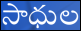
సాధుల